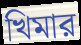
খিমার